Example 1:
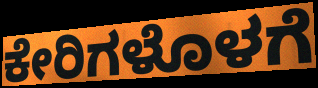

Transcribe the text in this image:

ಕೇರಿಗಳೊಳಗೆ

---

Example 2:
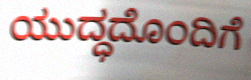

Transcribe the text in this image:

ಯುದ್ಧದೊಂದಿಗೆ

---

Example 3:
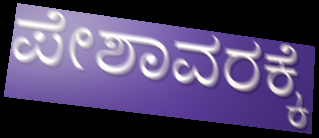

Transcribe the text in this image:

ಪೇಶಾವರಕ್ಕೆ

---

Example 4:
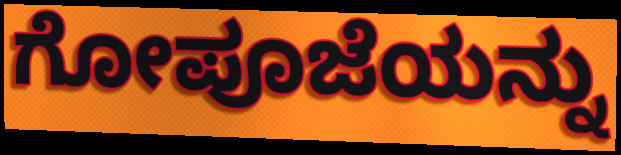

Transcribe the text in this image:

ಗೋಪೂಜೆಯನ್ನು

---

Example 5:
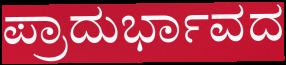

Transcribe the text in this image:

ಪ್ರಾದುರ್ಭಾವದ